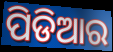
ପିଡିଆର